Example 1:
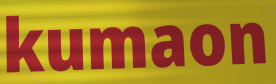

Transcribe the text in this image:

kumaon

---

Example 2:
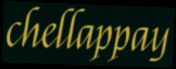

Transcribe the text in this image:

chellappay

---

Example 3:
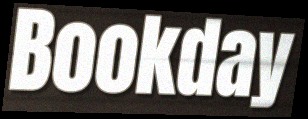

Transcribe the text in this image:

Bookday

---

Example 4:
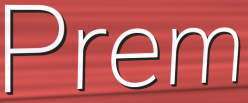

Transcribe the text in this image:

Prem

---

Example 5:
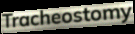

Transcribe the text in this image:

Tracheostomy